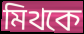
মিথকে